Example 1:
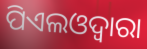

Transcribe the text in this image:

ପିଏଲଓଦ୍ୱାରା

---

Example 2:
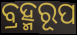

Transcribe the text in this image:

ବ୍ରହ୍ମରୂପ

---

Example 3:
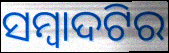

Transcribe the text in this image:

ସମ୍ବାଦଟିର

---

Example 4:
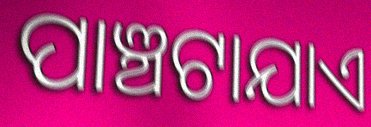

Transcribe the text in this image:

ପାଞ୍ଚଟାଯାଏ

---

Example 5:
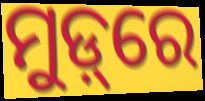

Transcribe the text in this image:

ମୁଡ଼୍‌ରେ